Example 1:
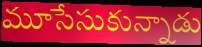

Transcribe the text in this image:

మూసేసుకున్నాడు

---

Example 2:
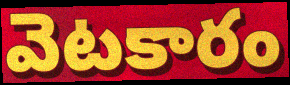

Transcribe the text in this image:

వెటకారం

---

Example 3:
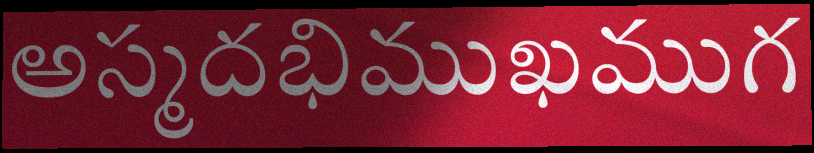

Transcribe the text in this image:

అస్మదభిముఖముగ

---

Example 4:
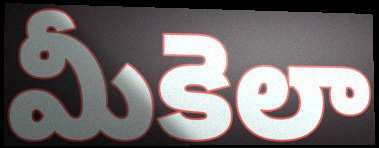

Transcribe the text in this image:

మీకెలా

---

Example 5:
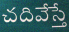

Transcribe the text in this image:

చదివేస్తే